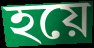
হয়ে